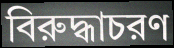
বিরুদ্ধাচরণ